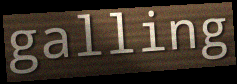
galling